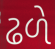
ઢળે